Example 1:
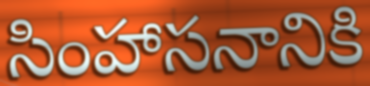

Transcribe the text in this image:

సింహాసనానికి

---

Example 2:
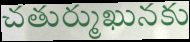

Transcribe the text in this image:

చతుర్ముఖునకు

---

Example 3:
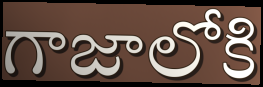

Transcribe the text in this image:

గాజాలోకి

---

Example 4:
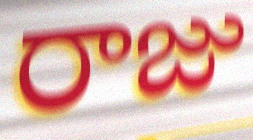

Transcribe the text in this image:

రాజు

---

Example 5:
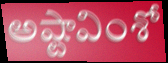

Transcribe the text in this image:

అష్టావింశో